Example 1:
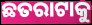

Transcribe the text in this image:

ଛତରାଟାକୁ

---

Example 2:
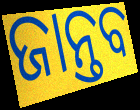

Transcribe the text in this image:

ଜାନ୍ତବ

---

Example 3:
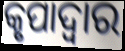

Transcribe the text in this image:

କୃପାଦ୍ଵାର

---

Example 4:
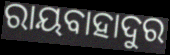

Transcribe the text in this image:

ରାୟବାହାଦୁର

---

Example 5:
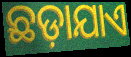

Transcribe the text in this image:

ଛଡ଼ାଯାଏ